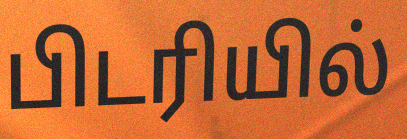
பிடரியில்